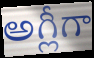
అగ్లీగా